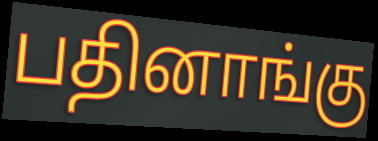
பதினாங்கு